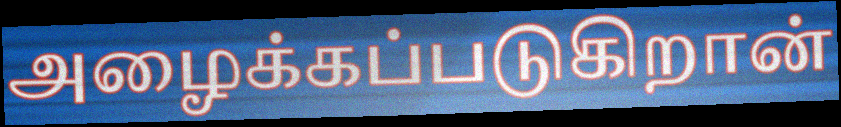
அழைக்கப்படுகிறான்